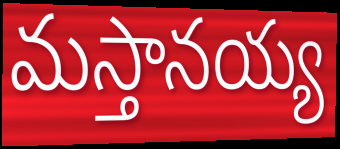
మస్తానయ్య